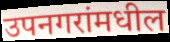
उपनगरांमधील